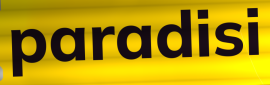
paradisi